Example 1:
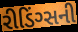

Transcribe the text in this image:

રીડિંગ્સની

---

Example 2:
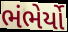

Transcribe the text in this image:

ભંભેર્યો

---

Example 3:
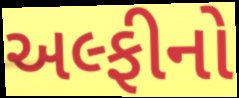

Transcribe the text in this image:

અલ્ફીનો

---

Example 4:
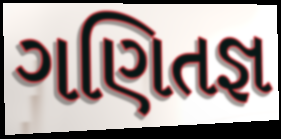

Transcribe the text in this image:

ગણિતજ્ઞ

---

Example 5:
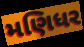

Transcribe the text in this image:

મણિધર